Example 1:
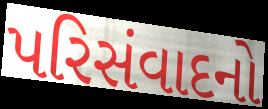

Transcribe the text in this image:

પરિસંવાદનો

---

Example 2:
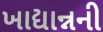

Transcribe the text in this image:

ખાદ્યાન્નની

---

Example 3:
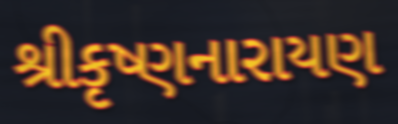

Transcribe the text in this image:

શ્રીકૃષ્ણનારાયણ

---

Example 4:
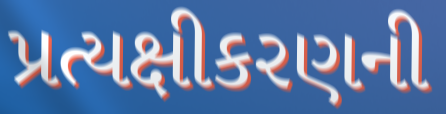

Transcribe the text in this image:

પ્રત્યક્ષીકરણની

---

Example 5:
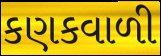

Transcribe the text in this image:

કણકવાળી